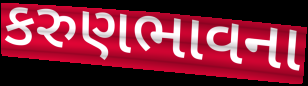
કરુણભાવના